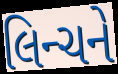
લિન્ચને